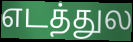
எடத்துல